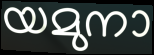
യമുനാ